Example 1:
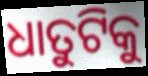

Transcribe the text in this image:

ଧାତୁଟିକୁ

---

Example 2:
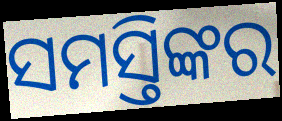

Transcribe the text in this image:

ସମସ୍ତିଙ୍କର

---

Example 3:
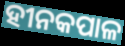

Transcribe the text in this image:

ହୀନକପାଳ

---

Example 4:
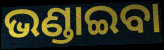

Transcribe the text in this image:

ଭଣ୍ଡାଇବା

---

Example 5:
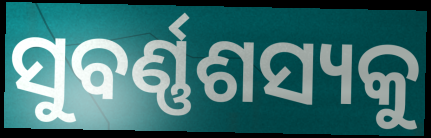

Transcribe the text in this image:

ସୁବର୍ଣ୍ଣଶସ୍ୟକୁ